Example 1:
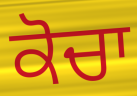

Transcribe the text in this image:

ਕੋਚਾ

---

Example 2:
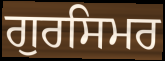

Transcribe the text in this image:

ਗੁਰਸਿਮਰ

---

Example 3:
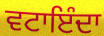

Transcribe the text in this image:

ਵਟਾਇੰਦਾ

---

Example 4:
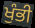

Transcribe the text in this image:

ਖੁੰਭੀ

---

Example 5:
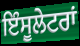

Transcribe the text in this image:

ਇੰਸੂਲੇਟਰਾਂ